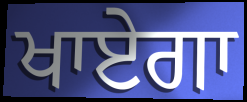
ਖਾਏਗਾ